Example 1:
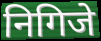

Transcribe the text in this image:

निगिजे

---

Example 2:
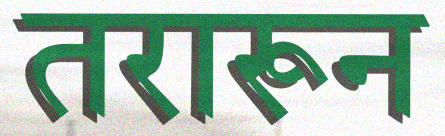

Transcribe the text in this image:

तरारून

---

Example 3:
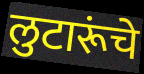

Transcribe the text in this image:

लुटारूंचे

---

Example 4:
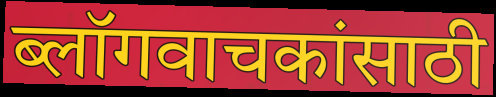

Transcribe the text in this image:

ब्लॉगवाचकांसाठी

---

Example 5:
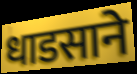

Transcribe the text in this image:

धाडसाने